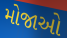
મોજાઓ